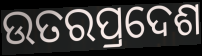
ଉତରପ୍ରଦେଶ